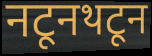
नटूनथटून